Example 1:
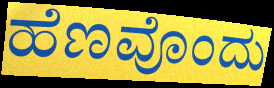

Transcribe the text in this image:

ಹೆಣವೊಂದು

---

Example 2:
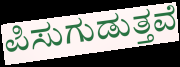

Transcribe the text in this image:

ಪಿಸುಗುಡುತ್ತವೆ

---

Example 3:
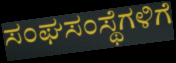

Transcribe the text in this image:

ಸಂಘಸಂಸ್ಥೆಗಳಿಗೆ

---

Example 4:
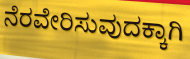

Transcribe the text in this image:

ನೆರವೇರಿಸುವುದಕ್ಕಾಗಿ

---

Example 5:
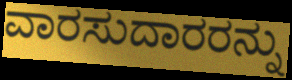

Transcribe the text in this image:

ವಾರಸುದಾರರನ್ನು